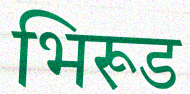
भिरूड